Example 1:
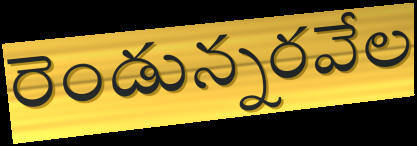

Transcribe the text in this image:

రెండున్నరవేల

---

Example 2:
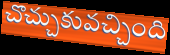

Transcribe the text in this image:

చొచ్చుకువచ్చింది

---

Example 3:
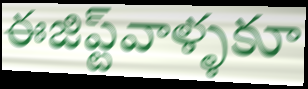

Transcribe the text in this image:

ఈజిప్ట్‌వాళ్ళకూ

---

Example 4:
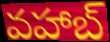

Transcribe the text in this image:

వహాబ్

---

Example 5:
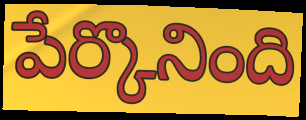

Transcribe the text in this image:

పేర్కొనింది